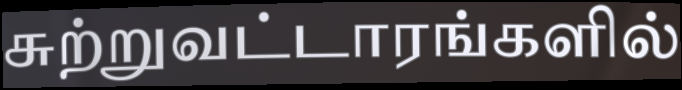
சுற்றுவட்டாரங்களில்